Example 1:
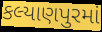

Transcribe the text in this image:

કલ્યાણપુરમાં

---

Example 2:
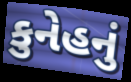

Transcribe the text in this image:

કુનેહનું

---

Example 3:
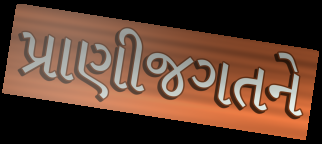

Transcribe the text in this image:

પ્રાણીજગતને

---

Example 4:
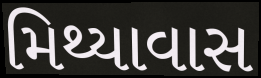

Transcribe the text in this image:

મિથ્યાવાસ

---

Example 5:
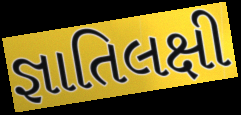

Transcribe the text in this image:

જ્ઞાતિલક્ષી